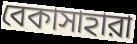
বেকাসাহারা